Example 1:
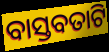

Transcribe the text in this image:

ବାସ୍ତବତାଟି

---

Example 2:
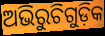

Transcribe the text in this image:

ଅଭିରୁଚିଗୁଡ଼ିକ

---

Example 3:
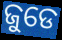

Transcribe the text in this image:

ଜୁଡେ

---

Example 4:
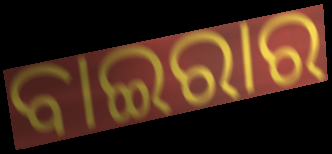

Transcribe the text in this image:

ବାଇରାର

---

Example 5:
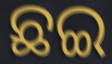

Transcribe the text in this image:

ଛଇ